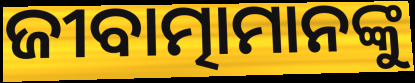
ଜୀବାତ୍ମାମାନଙ୍କୁ